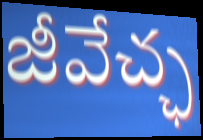
జీవేచ్ఛ